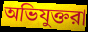
অভিযুক্তরা